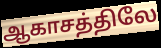
ஆகாசத்திலே